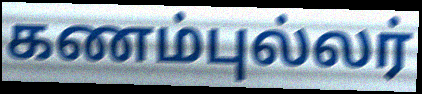
கணம்புல்லர்